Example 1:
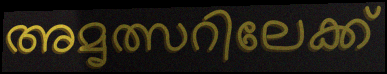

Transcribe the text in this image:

അമൃത്സറിലേക്ക്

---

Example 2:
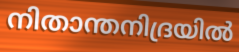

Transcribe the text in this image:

നിതാന്തനിദ്രയിൽ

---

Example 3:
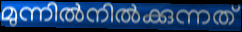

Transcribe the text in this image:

മുന്നിൽനിൽക്കുന്നത്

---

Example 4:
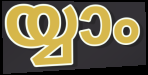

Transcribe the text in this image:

യ്യാം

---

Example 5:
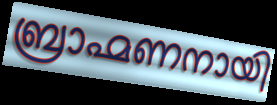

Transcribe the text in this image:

ബ്രാഹ്മണനായി